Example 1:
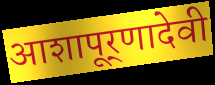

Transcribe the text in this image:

आशापूर्णादेवी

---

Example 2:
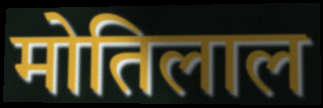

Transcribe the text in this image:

मोतिलाल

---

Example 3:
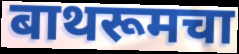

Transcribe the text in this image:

बाथरूमचा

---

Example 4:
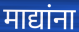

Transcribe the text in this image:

माद्यांना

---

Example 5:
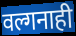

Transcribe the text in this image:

वल्गनाही